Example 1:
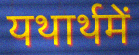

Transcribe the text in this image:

यथार्थमें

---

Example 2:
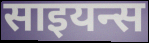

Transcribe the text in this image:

साइयन्स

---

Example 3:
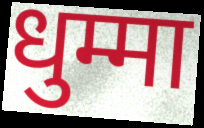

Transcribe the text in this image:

धुम्मा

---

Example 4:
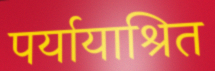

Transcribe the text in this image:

पर्यायाश्रित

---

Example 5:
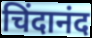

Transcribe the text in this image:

चिंदानंद